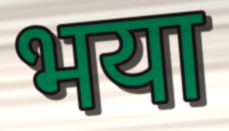
भया